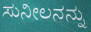
ಸುನೀಲನನ್ನು